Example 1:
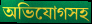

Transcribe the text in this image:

অভিযোগসহ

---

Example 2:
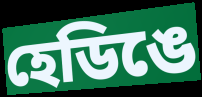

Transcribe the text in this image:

হেডিঙে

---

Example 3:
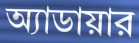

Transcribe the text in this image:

অ্যাডায়ার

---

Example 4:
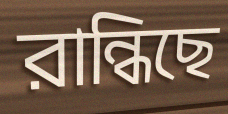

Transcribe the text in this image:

রান্ধিছে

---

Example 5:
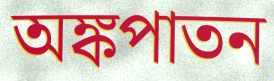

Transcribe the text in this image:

অঙ্কপাতন